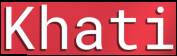
Khati